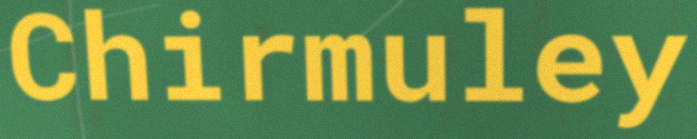
Chirmuley